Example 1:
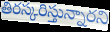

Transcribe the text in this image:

తిరస్కరిస్తున్నారని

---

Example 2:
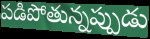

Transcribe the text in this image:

పడిపోతున్నప్పుడు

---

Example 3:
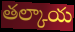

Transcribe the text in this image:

తల్కాయ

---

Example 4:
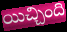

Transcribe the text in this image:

యిచ్చింది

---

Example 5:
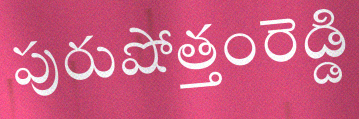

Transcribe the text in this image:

పురుషోత్తంరెడ్డి